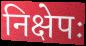
निक्षेपः